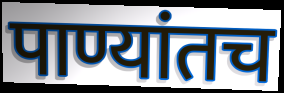
पाण्यांतच